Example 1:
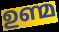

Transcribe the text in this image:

ഉണ്മ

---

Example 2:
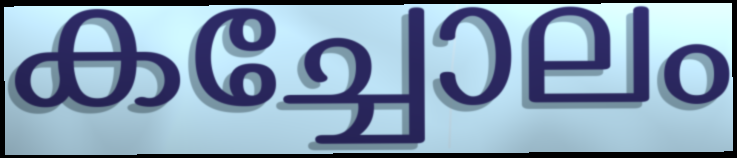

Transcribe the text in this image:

കച്ചോലം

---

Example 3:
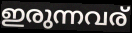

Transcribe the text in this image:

ഇരുന്നവര്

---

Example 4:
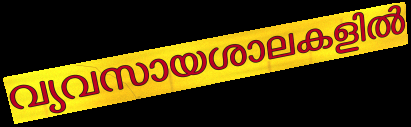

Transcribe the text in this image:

വ്യവസായശാലകളിൽ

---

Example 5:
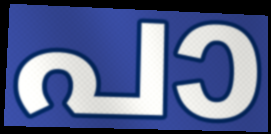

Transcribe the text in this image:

പാ